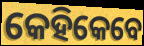
କେହିକେବେ